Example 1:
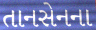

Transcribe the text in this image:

તાનસેનના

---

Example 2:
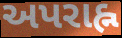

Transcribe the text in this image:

અપરાહ્ન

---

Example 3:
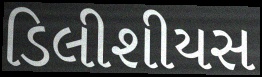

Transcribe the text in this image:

ડિલીશીયસ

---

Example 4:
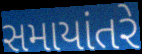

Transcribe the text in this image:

સમાયાંતરે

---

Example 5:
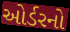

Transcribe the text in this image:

ઓર્ડરનો